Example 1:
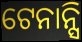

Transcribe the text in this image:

ଟେନାନ୍ସି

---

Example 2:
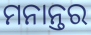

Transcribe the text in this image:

ମନାନ୍ତର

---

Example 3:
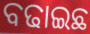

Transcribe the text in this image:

ବଢାଇଛ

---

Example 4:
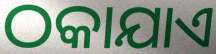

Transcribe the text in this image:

ଠକାଯାଏ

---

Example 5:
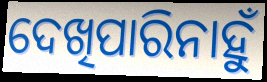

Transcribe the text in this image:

ଦେଖିପାରିନାହୁଁ